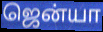
ஜென்யா